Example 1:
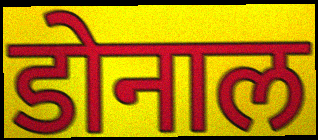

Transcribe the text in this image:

डोनाल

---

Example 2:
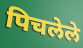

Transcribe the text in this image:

पिचलेले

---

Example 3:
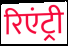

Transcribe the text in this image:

रिएंट्री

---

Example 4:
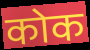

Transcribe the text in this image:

कोक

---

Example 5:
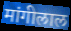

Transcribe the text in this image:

मांगीलाल